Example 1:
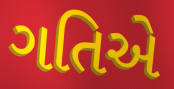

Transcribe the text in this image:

ગતિએ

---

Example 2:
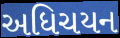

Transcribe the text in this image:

અધિચયન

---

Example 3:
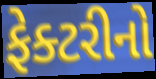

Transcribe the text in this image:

ફેક્ટરીનો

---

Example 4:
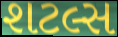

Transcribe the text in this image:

શટલ્સ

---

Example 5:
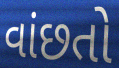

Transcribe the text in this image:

વાંછતો